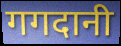
गगदानी